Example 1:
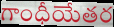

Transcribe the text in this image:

గాంధీయేతర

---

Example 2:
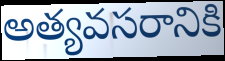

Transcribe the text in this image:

అత్యవసరానికి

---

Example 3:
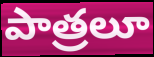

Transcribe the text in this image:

పాత్రలూ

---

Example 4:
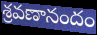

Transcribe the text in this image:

శ్రవణానందం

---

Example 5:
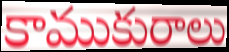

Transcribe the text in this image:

కాముకురాలు